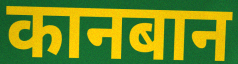
कानबान